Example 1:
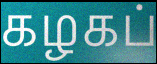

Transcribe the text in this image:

கழகப்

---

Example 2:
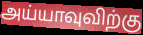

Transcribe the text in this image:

அய்யாவுவிற்கு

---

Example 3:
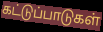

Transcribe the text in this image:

கட்டுப்பாடுகள்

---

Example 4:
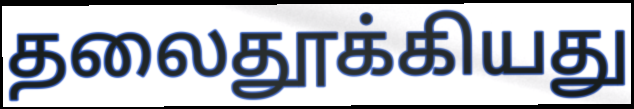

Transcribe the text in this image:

தலைதூக்கியது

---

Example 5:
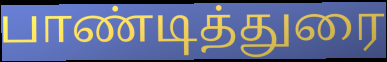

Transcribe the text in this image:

பாண்டித்துரை